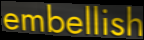
embellish